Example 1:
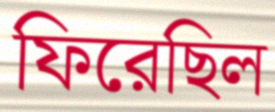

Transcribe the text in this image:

ফিরেছিল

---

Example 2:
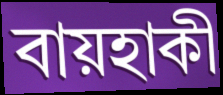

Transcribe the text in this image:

বায়হাকী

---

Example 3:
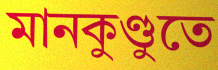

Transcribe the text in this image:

মানকুণ্ডুতে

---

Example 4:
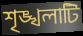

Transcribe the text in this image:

শৃঙ্খলাটি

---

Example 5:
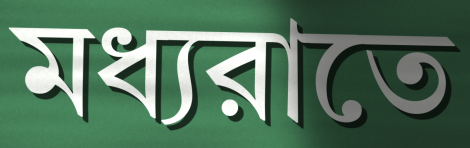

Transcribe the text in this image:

মধ্যরাতে